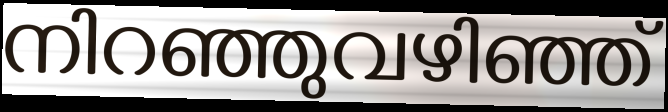
നിറഞ്ഞുവഴിഞ്ഞ്